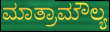
ಮಾತ್ರಾಮೌಲ್ಯ